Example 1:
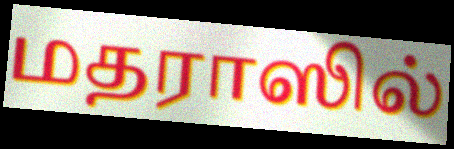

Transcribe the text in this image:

மதராஸில்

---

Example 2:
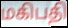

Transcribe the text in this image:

மகிபதி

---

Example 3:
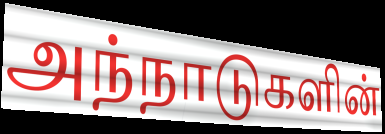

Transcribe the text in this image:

அந்நாடுகளின்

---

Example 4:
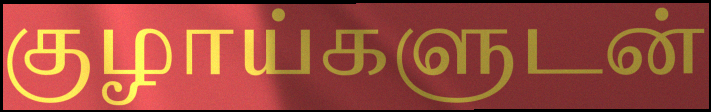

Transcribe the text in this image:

குழாய்களுடன்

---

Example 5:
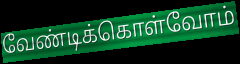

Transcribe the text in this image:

வேண்டிக்கொள்வோம்